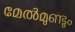
മേൽമുണ്ടും